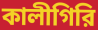
কালীগিরি